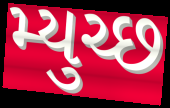
મ્યુચ્છ